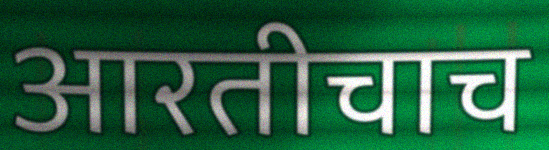
आरतीचाच